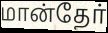
மான்தேர்